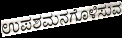
ಉಪಶಮನಗೊಳಿಸುವ